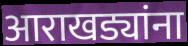
आराखड्यांना